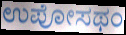
ಉಪೋಸಥಂ